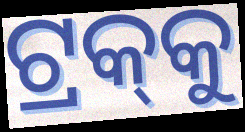
ଟ୍ରକ୍‍କୁ